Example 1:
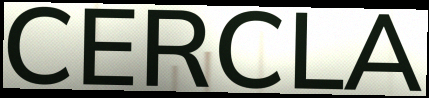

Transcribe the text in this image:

CERCLA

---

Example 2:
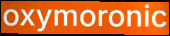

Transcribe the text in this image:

oxymoronic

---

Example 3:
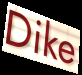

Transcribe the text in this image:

Dike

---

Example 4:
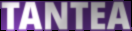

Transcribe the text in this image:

TANTEA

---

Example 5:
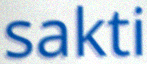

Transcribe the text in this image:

sakti